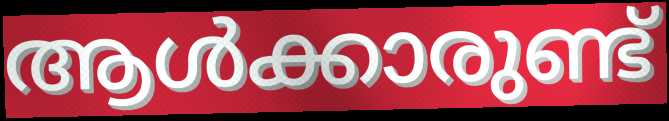
ആൾക്കാരുണ്ട്